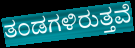
ತಂಡಗಳಿರುತ್ತವೆ